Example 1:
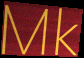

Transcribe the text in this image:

Mk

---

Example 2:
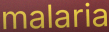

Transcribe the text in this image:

malaria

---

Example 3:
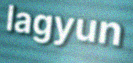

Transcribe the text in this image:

lagyun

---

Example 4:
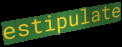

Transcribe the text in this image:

estipulate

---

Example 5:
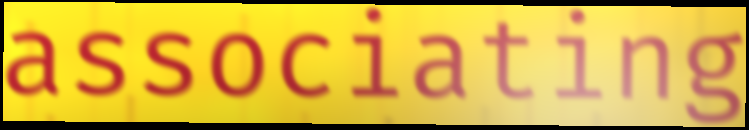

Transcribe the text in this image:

associating